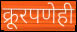
क्रूरपणेही